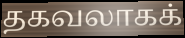
தகவலாகக்